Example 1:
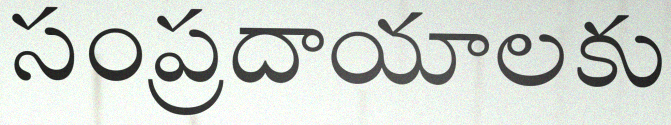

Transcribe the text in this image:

సంప్రదాయాలకు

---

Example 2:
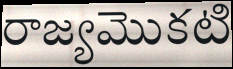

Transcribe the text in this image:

రాజ్యమొకటి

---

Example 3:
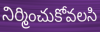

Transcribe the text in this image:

నిర్మించుకోవలసి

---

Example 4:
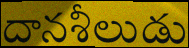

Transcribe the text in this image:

దానశీలుడు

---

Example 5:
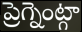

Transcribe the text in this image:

ప్రెగ్నెంట్గా